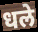
धले